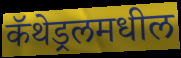
कॅथेड्रलमधील